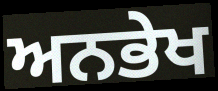
ਅਨਭੇਖ